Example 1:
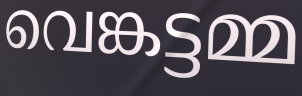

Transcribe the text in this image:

വെങ്കട്ടമ്മ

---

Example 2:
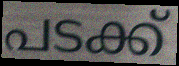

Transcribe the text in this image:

പടക്ക്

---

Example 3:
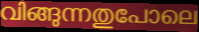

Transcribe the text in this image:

വിങ്ങുന്നതുപോലെ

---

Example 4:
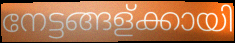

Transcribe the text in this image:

നേട്ടങ്ങള്ക്കായി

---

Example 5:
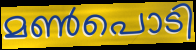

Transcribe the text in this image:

മൺപൊടി